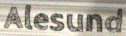
Alesund